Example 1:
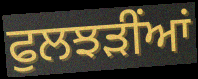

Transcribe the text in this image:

ਫੁਲਝੜੀਂਆਂ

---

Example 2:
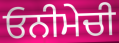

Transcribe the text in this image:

ਓਨੀਮੇਚੀ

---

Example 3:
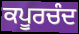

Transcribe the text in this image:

ਕਪੂਰਚੰਦ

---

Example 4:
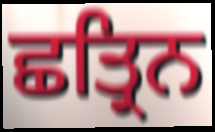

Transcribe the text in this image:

ਛਤ੍ਰਿਨ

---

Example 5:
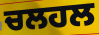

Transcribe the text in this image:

ਚਲਹਲ